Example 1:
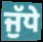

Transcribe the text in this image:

ਜੁੱਧੇ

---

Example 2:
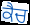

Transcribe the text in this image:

ਕੈਚ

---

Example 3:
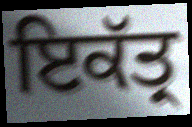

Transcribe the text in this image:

ਇਕੱਤ੍ਰ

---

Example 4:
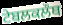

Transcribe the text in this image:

ਟੇਬਲਕਲੌਥ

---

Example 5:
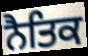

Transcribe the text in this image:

ਨੈਤਿਕ